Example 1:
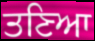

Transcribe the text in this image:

ਤਣਿਆ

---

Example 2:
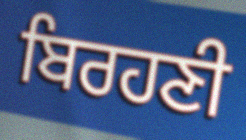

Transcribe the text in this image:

ਬਿਰਹਣੀ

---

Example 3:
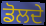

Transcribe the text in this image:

ਡੋਲਦੇ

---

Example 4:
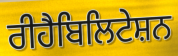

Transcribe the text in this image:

ਰੀਹੈਬਿਲਿਟੇਸ਼ਨ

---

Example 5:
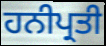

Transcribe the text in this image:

ਹਨੀਪ੍ਰਤੀ